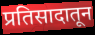
प्रतिसादातून